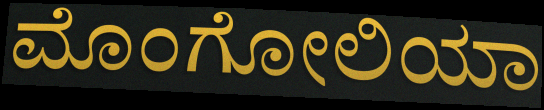
ಮೊಂಗೋಲಿಯಾ